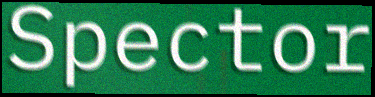
Spector